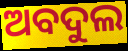
ଅବଦୁଲ